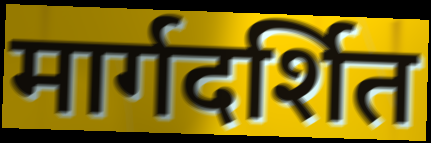
मार्गदर्शित